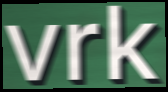
vrk